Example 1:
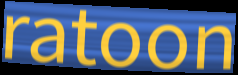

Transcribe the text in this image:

ratoon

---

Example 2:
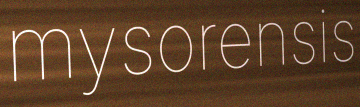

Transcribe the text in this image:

mysorensis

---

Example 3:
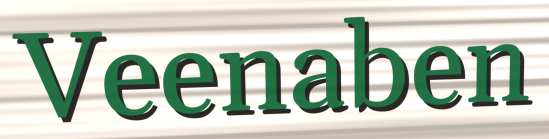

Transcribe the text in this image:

Veenaben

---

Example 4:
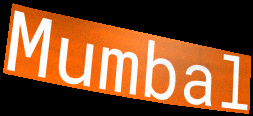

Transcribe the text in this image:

Mumbal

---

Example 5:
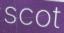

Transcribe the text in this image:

scot